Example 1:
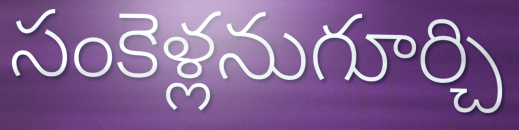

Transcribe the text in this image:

సంకెళ్లనుగూర్చి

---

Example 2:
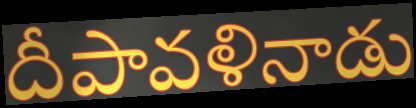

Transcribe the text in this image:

దీపావళినాడు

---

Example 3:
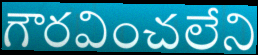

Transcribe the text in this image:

గౌరవించలేని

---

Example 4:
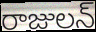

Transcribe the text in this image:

రాజులన్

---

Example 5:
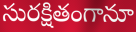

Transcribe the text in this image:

సురక్షితంగానూ